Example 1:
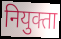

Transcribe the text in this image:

नियुक्ता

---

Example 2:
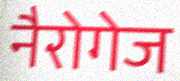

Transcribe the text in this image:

नैरोगेज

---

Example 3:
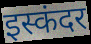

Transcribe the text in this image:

इस्कंदर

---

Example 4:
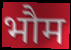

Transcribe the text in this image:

भौम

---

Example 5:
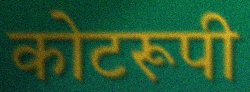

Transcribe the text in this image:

कोटरूपी